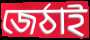
জেঠাই